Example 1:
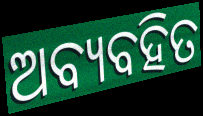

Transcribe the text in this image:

ଅବ୍ୟବହିତ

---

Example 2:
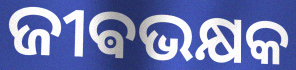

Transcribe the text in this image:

ଜୀଵଭକ୍ଷକ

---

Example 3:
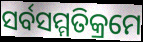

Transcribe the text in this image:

ସର୍ବସମ୍ମତିକ୍ରମେ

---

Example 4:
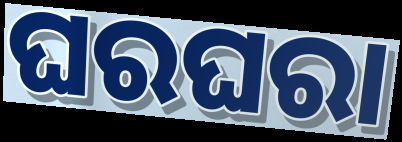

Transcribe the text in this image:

ଘରଘରା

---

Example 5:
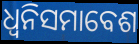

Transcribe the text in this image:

ଧ୍ୱନିସମାବେଶ